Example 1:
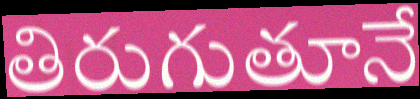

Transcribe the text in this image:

తిరుగుతూనే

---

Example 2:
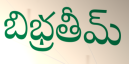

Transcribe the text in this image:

బిభ్రతీమ్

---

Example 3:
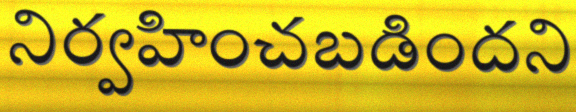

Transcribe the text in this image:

నిర్వహించబడిందని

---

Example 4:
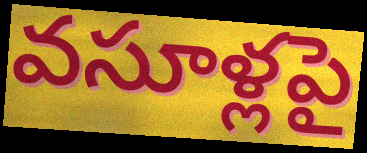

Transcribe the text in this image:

వసూళ్లపై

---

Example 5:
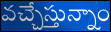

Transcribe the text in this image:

వచ్చేస్తున్నాం